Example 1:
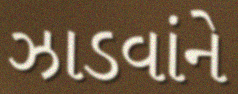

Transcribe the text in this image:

ઝાડવાંને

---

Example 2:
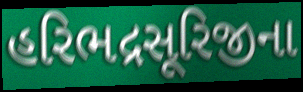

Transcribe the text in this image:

હરિભદ્રસૂરિજીના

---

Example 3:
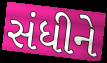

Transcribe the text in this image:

સંધીને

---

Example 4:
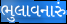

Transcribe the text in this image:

ભુલાવનારું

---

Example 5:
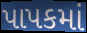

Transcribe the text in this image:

પાપકમાં